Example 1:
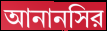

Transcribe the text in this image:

আনানসির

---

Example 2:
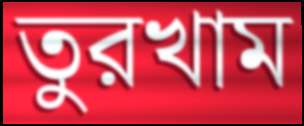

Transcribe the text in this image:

তুরখাম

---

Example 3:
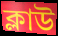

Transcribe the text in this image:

ক্লাউ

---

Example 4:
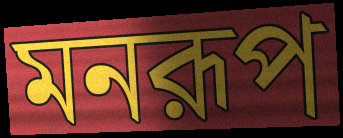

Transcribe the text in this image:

মনরূপ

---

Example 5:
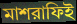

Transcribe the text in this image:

মাশরাফিই